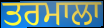
ਤਰਮਾਲਾ